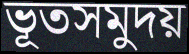
ভূতসমুদয়